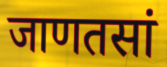
जाणतसां